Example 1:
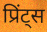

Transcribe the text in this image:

प्रिंट्स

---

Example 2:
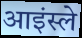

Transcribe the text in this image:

आइंस्ले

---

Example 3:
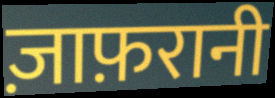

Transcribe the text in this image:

ज़ाफ़रानी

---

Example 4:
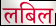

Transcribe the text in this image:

लबिल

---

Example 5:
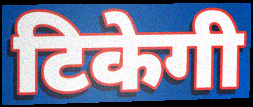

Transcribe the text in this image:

टिकेगी